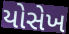
યોસેખ